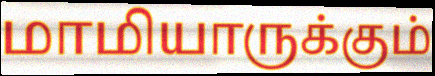
மாமியாருக்கும்